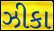
ઝીકા